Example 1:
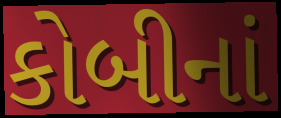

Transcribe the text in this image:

કોબીનાં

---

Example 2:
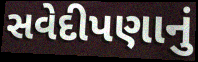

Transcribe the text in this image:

સવેદીપણાનું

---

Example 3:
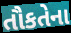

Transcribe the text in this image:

તૌકતેના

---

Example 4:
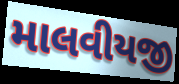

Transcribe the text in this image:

માલવીયજી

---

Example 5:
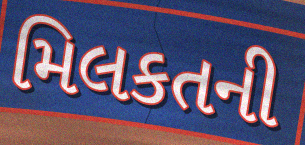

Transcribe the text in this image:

મિલકતની